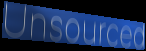
Unsourced